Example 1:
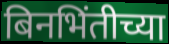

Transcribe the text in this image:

बिनभिंतीच्या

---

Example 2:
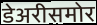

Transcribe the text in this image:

डेअरीसमोर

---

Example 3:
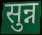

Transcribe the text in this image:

सुन्न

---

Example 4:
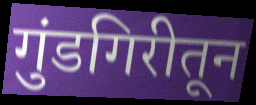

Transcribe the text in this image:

गुंडगिरीतून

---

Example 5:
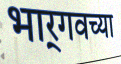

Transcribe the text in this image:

भार्गवच्या